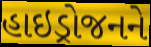
હાઇડ્રોજનને